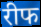
रीफ